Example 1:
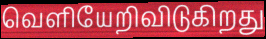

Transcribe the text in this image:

வெளியேறிவிடுகிறது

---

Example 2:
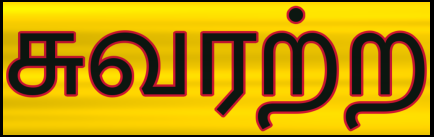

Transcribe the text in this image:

சுவரற்ற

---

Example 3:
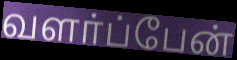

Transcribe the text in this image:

வளர்ப்பேன்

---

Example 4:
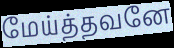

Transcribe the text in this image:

மேய்த்தவனே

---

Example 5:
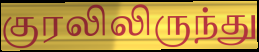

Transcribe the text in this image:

குரலிலிருந்து